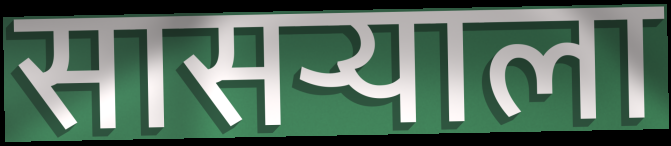
सासर्‍याला